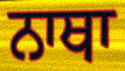
ਨਾਥਾ